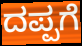
ದಪ್ಪಗೆ